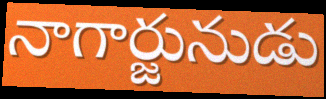
నాగార్జునుడు